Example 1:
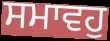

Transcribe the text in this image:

ਸਮਾਵਹੁ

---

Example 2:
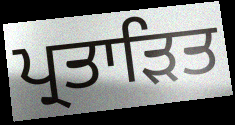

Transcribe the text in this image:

ਪ੍ਰਤਾੜਿਤ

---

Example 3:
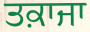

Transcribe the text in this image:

ਤਕ਼ਾਜਾ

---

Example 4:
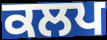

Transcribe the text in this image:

ਕਲਪ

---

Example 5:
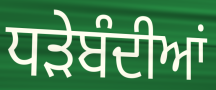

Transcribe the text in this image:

ਧੜੇਬੰਦੀਆਂ